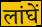
लांघें